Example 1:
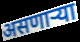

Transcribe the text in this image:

असणार्‍या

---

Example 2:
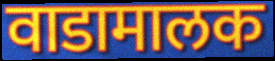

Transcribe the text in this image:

वाडामालक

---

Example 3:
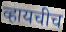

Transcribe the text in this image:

व्हायचीच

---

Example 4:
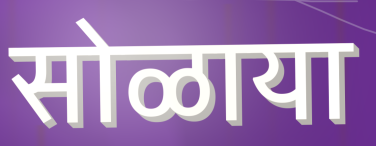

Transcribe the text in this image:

सोळाया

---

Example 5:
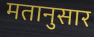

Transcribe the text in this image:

मतानुसार